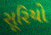
સૂરિયો